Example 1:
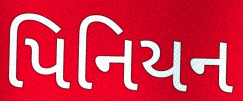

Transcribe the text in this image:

પિનિયન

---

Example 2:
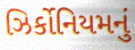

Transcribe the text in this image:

ઝિર્કોનિયમનું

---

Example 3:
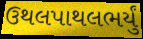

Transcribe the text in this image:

ઉથલપાથલભર્યું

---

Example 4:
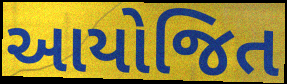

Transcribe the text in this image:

આયોજિત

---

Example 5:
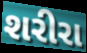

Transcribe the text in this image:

શરીરા